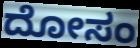
ದೋಸಂ